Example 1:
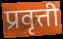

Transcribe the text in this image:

प्रवृत्ती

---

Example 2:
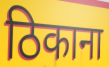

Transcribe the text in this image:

ठिकाना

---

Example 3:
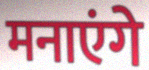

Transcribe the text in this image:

मनाएंगे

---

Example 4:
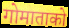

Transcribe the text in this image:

गोमाताको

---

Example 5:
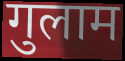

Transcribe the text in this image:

गुलाम